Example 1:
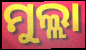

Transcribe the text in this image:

ମୁଲ୍ଲା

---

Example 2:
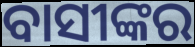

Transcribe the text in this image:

ବାସୀଙ୍କର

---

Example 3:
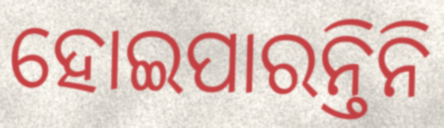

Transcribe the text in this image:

ହୋଇପାରନ୍ତିନି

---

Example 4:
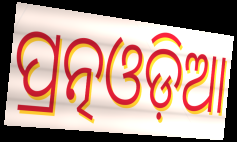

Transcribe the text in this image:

ପ୍ରତ୍ନଓଡ଼ିଆ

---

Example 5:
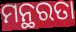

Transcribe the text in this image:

ମନ୍ଥରତା